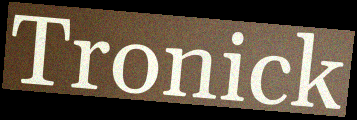
Tronick